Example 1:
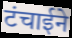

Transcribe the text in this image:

टंचाईने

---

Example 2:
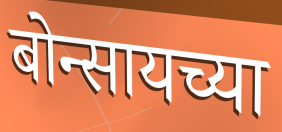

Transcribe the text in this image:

बोन्सायच्या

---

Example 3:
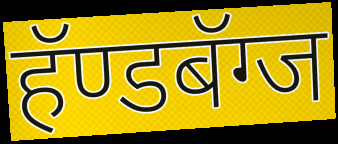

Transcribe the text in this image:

हॅण्डबॅग्ज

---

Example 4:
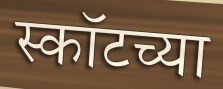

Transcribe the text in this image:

स्कॉटच्या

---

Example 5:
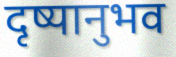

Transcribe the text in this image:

दृष्यानुभव